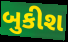
બુકીશ